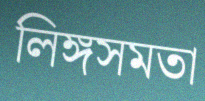
লিঙ্গসমতা